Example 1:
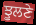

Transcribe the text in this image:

ਝੂਲਣੇ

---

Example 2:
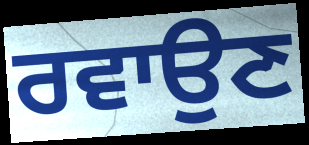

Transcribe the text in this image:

ਰਵਾਉਣ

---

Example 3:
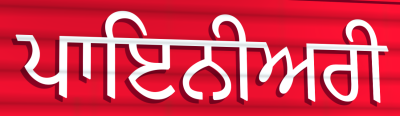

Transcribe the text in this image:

ਪਾਇਨੀਅਰੀ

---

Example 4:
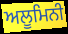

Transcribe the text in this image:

ਅਲੂਮਿਨੀ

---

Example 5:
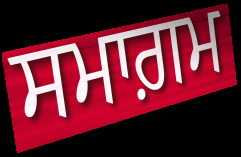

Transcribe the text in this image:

ਸਮਾਗ਼ਮ